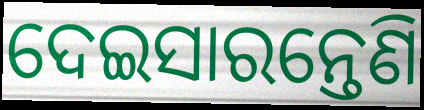
ଦେଇସାରନ୍ତେଣି